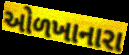
ઓળખાનારા